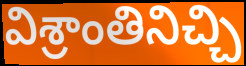
విశ్రాంతినిచ్చి